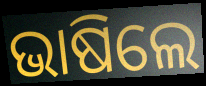
ଭାଷିଲେ